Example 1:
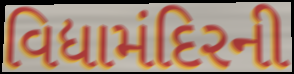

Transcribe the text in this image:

વિદ્યામંદિરની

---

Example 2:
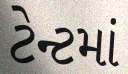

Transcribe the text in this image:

ટેન્ટમાં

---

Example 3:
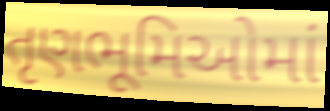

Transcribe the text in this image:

તૃણભૂમિઓમાં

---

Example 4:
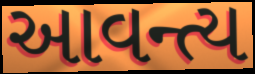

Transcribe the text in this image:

આવન્ત્ય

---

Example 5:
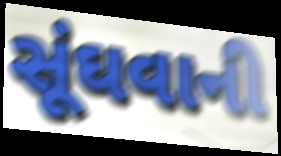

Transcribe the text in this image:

સૂંઘવાની